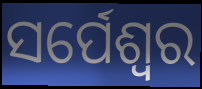
ସର୍ପେଶ୍ଵର